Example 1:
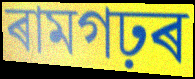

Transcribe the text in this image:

ৰামগঢ়ৰ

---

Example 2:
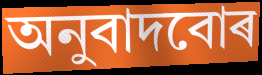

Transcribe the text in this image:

অনুবাদবোৰ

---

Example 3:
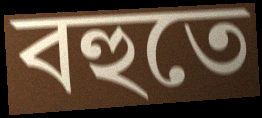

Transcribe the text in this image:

বহুতে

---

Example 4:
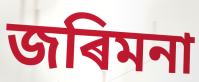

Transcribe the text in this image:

জৰিমনা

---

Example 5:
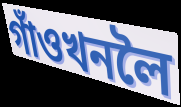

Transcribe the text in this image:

গাঁওখনলৈ